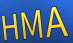
HMA